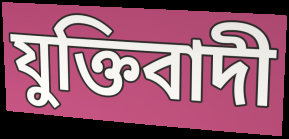
যুক্তিবাদী